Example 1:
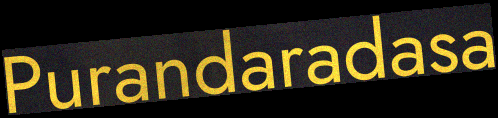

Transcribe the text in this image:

Purandaradasa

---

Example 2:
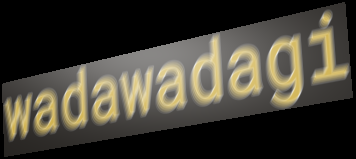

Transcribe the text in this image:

wadawadagi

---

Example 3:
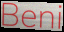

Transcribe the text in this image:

Beni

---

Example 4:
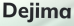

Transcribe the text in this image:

Dejima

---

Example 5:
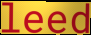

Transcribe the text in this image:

leed